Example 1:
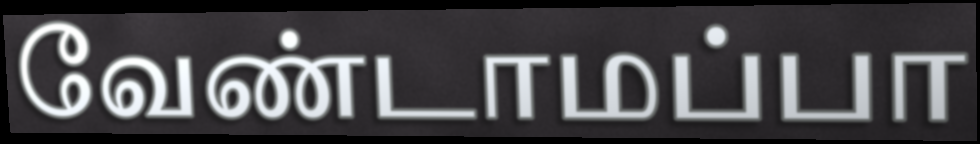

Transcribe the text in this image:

வேண்டாமப்பா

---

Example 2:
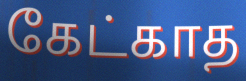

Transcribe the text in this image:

கேட்காத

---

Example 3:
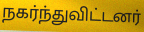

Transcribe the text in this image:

நகர்ந்துவிட்டனர்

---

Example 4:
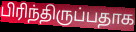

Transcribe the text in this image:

பிரிந்திருப்பதாக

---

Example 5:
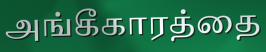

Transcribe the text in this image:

அங்கீகாரத்தை